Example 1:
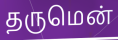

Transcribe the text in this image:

தருமென்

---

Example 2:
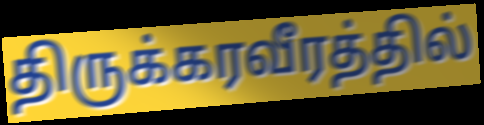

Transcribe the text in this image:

திருக்கரவீரத்தில்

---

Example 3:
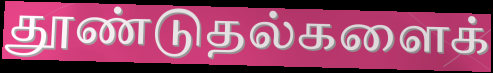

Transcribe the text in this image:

தூண்டுதல்களைக்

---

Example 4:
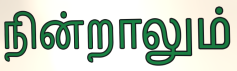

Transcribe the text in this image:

நின்றாலும்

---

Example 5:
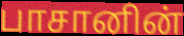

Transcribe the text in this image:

பாசானின்